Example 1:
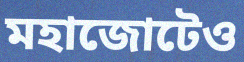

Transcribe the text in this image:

মহাজোটেও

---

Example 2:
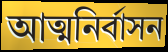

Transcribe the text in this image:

আত্মনির্বাসন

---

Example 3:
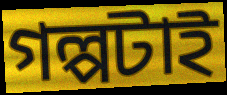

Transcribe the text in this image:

গল্পটাই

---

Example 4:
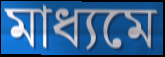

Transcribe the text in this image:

মাধ্যমে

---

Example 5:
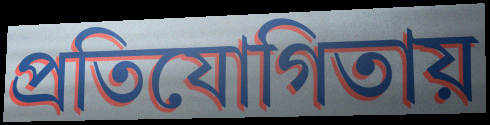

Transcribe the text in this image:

প্রতিযোগিতায়